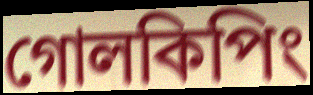
গোলকিপিং